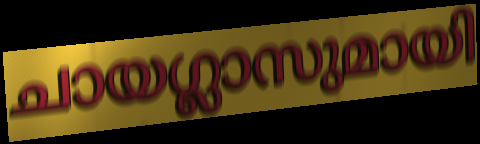
ചായഗ്ലാസുമായി